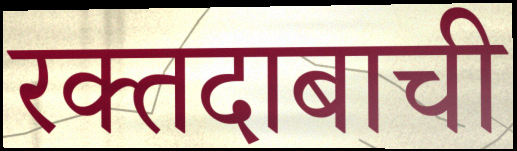
रक्तदाबाची